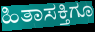
ಹಿತಾಸಕ್ತಿಗೂ